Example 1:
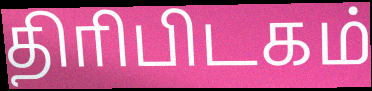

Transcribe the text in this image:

திரிபிடகம்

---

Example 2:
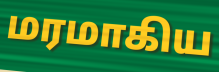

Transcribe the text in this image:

மரமாகிய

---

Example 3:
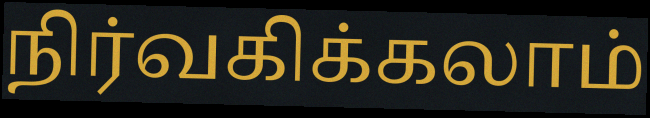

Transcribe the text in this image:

நிர்வகிக்கலாம்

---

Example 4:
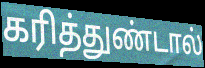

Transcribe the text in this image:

கரித்துண்டால்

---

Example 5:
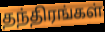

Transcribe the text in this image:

தந்திரங்கள்